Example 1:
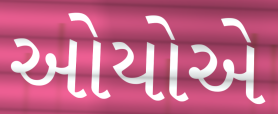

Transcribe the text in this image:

ઓયોએ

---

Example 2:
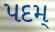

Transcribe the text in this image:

પદમ્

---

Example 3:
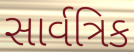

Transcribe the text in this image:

સાર્વત્રિક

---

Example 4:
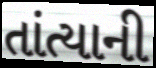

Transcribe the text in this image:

તાંત્યાની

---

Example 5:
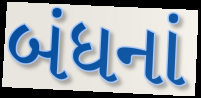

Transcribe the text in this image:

બંધનાં